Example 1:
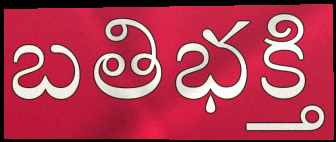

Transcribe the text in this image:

బతిభక్తి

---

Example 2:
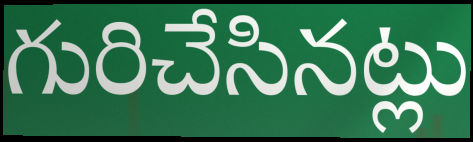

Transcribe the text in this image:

గురిచేసినట్లు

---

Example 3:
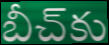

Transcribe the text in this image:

బీచ్‌కు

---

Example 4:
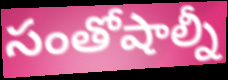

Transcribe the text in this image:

సంతోషాల్నీ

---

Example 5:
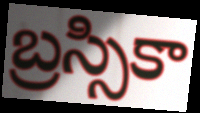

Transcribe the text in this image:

బ్రస్సికా